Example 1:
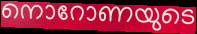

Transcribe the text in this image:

നൊറോണയുടെ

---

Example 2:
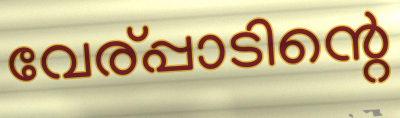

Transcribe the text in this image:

വേര്പ്പാടിന്റെ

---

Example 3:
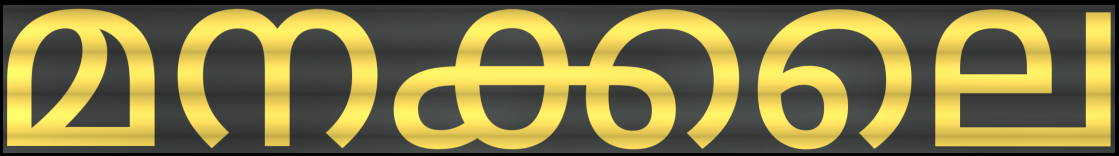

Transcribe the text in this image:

മനക്കലെ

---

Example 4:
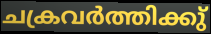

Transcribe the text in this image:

ചക്രവർത്തിക്കു്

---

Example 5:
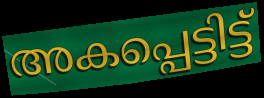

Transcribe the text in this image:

അകപ്പെട്ടിട്ട്